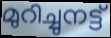
മുറിച്ചുനട്ട്